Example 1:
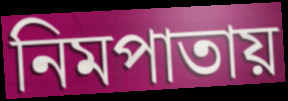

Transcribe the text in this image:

নিমপাতায়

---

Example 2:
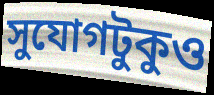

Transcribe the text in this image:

সুযোগটুকুও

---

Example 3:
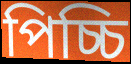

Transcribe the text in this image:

পিচ্চি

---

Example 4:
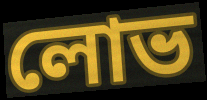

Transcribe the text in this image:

লোভ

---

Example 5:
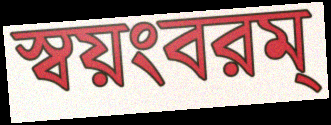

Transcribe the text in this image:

স্বয়ংবরম্